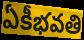
ఏకీభవతి